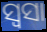
ସ୍ୱସା